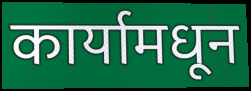
कार्यामधून